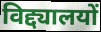
विद्द्यालयों